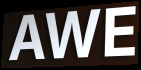
AWE